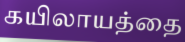
கயிலாயத்தை